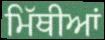
ਮਿੱਥੀਆਂ